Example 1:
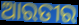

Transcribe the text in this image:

ଆରତୀର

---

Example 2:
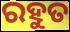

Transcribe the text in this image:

ରହୁତ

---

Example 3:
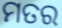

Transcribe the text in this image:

ମତର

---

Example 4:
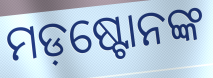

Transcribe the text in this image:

ମଡ଼ଷ୍ଟୋନଙ୍କ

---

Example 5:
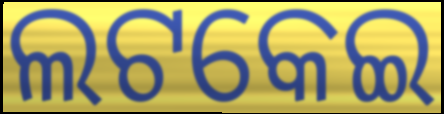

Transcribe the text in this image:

ଲଟକେଇ